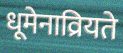
धूमेनाव्रियते